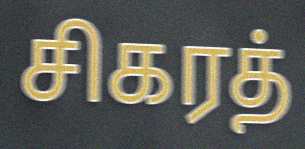
சிகரத்